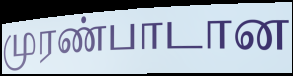
முரண்பாடான